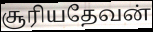
சூரியதேவன்